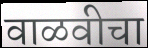
वाळवीचा